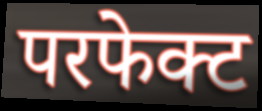
परफेक्ट